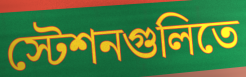
স্টেশনগুলিতে